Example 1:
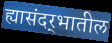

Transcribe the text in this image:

ह्यासंदर्भातील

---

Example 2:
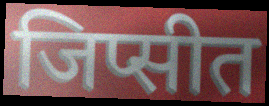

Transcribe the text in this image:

जिप्सीत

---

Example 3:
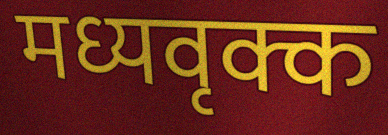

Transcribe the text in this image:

मध्यवृक्क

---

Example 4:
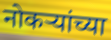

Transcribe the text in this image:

नोकर्‍यांच्या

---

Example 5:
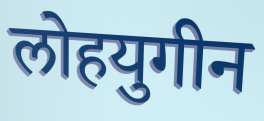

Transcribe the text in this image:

लोहयुगीन